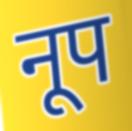
नूप